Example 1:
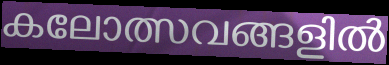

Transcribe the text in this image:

കലോത്സവങ്ങളിൽ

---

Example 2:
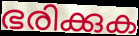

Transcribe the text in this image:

ഭരിക്കുക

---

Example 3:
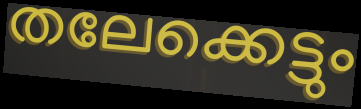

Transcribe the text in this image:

തലേക്കെട്ടും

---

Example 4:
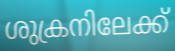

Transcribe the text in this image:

ശുക്രനിലേക്ക്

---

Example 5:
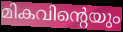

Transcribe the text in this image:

മികവിന്റെയും